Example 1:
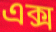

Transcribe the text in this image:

এক্স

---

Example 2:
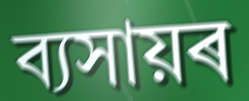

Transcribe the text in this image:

ব্যসায়ৰ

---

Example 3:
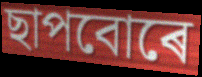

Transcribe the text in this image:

ছাপবোৰে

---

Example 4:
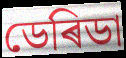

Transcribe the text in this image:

ডেৰিডা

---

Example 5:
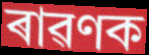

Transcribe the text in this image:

ৰাৱণক